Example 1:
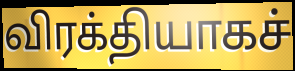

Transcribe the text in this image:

விரக்தியாகச்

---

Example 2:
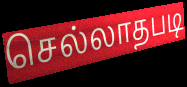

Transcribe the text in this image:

செல்லாதபடி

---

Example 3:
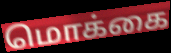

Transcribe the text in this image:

மொக்கை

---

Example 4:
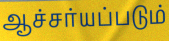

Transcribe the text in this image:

ஆச்சர்யப்படும்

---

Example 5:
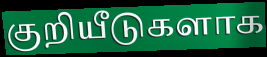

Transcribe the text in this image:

குறியீடுகளாக